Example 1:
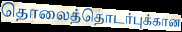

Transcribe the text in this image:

தொலைத்தொடர்புக்கான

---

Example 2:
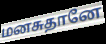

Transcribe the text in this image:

மனசுதானே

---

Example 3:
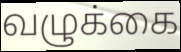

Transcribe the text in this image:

வழுக்கை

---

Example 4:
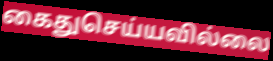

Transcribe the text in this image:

கைதுசெய்யவில்லை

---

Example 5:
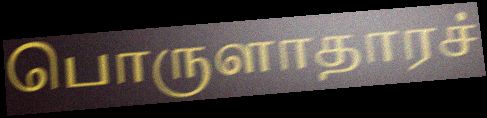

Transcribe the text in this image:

பொருளாதாரச்